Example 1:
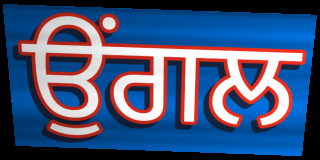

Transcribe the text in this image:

ਉੰਗਲ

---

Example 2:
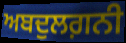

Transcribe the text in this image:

ਅਬਦੁਲਗ਼ਨੀ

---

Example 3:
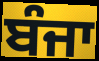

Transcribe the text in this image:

ਬੰਜਾ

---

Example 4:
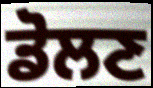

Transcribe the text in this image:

ਡੋਲਣ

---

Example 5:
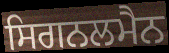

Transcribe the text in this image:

ਸਿਗਨਲਮੈਨ